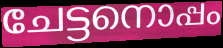
ചേട്ടനൊപ്പം